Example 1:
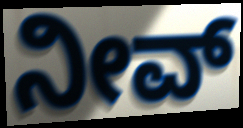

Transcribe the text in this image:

ನೀವ್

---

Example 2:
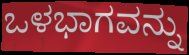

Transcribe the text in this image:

ಒಳಭಾಗವನ್ನು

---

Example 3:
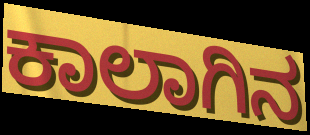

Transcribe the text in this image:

ಕಾಲಾಗಿನ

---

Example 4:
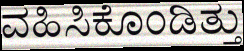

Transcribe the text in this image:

ವಹಿಸಿಕೊಂಡಿತ್ತು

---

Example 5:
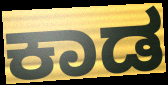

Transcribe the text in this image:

ಕಾಡ